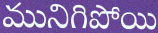
మునిగిపోయి